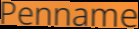
Penname